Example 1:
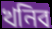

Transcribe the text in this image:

খনিব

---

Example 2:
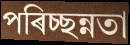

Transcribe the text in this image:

পৰিচ্ছন্নতা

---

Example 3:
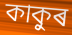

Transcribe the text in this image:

কাকুৰ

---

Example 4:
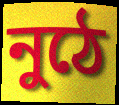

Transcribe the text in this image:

নুঠে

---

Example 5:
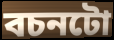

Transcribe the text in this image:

বচনটো